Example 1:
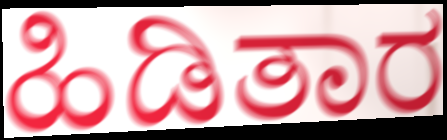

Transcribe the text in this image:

ಹಿಡಿತಾರ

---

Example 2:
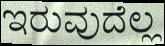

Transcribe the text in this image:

ಇರುವುದೆಲ್ಲ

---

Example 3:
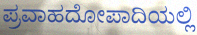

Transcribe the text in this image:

ಪ್ರವಾಹದೋಪಾದಿಯಲ್ಲಿ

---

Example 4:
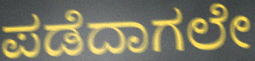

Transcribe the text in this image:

ಪಡೆದಾಗಲೇ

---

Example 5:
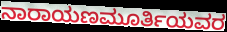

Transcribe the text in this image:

ನಾರಾಯಣಮೂರ್ತಿಯವರ